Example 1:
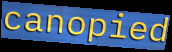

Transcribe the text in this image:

canopied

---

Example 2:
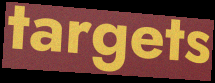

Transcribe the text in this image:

targets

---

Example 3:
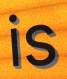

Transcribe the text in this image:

is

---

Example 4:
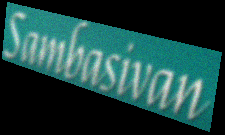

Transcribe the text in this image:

Sambasivan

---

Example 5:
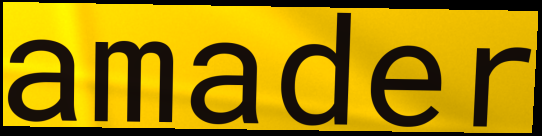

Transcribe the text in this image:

amader